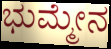
ಭುಮ್ಮೇನ